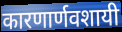
कारणार्णवशायी